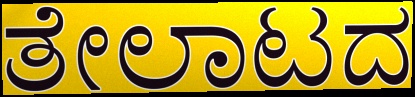
ತೇಲಾಟದ